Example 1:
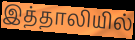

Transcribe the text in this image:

இத்தாலியில்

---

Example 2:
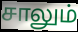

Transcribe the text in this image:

சாலும்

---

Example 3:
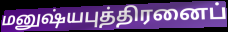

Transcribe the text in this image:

மனுஷ்யபுத்திரனைப்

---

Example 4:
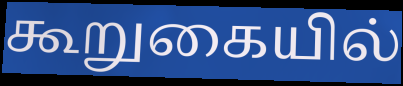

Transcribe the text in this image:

கூறுகையில்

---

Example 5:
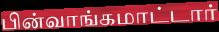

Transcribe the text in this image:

பின்வாங்கமாட்டார்